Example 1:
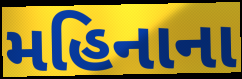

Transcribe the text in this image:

મહિનાના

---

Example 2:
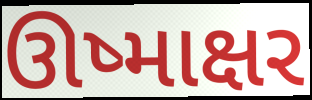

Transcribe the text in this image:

ઊષ્માક્ષર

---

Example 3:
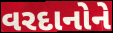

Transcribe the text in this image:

વરદાનોને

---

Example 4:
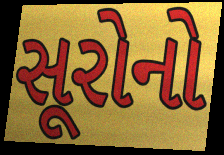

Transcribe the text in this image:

સૂરોનો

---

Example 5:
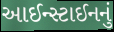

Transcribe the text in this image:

આઈન્સ્ટાઈનનું